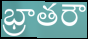
భ్రాతరౌ